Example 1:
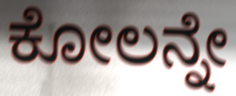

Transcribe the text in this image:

ಕೋಲನ್ನೇ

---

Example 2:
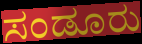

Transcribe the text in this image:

ಸಂಡೂರು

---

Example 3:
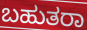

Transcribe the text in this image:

ಬಹುತರಾ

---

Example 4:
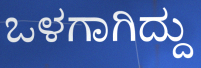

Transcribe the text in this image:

ಒಳಗಾಗಿದ್ದು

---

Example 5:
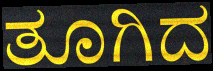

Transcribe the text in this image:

ತೂಗಿದ